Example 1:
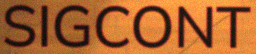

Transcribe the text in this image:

SIGCONT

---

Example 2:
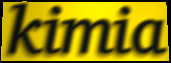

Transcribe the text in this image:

kimia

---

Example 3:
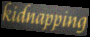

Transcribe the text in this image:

kidnapping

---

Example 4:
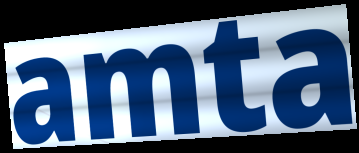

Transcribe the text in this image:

amta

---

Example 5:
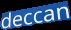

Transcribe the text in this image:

deccan